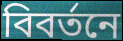
বিবর্তনে